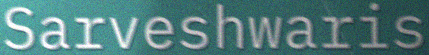
Sarveshwaris